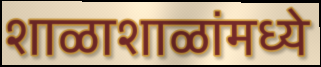
शाळाशाळांमध्ये